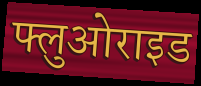
फ्लुओराइड